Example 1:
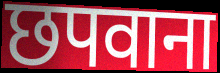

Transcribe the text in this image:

छपवाना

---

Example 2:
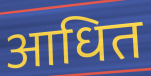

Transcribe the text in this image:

आधित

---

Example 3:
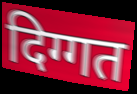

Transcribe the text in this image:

दिग्गत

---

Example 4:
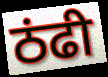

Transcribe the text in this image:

ठंढी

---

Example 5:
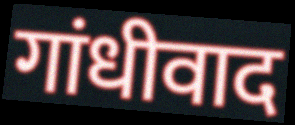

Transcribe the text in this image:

गांधीवाद